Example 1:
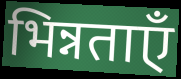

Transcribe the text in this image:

भिन्नताएँ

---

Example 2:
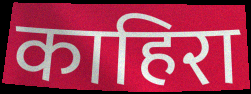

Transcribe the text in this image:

काहिरा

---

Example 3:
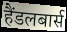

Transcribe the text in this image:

हैंडलबार्स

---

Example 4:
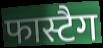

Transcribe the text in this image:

फास्टैग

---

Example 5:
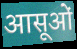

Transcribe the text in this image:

आसूओं